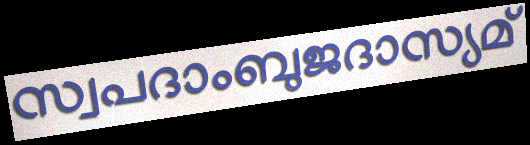
സ്വപദാംബുജദാസ്യമ്